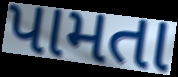
પામતા